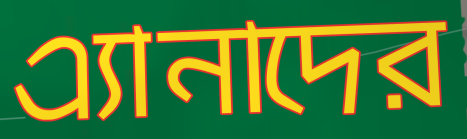
এ্যানাদের